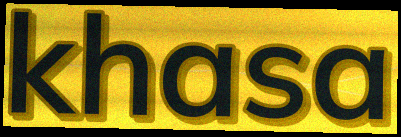
khasa